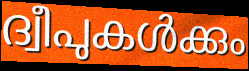
ദ്വീപുകൾക്കും